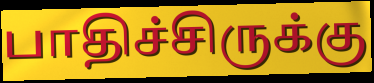
பாதிச்சிருக்கு